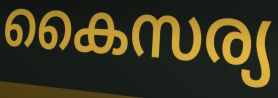
കൈസര്യ